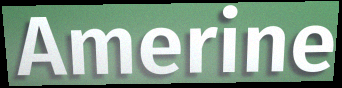
Amerine